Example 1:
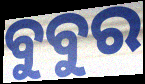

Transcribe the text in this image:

ବୁବୁର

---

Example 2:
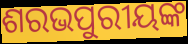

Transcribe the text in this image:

ଶରଭପୁରୀୟଙ୍କ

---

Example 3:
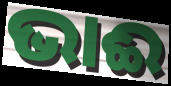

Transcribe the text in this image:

ଭାଈ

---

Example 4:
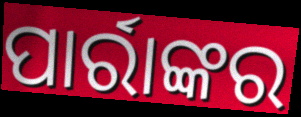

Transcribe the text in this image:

ପାର୍ରାଙ୍କର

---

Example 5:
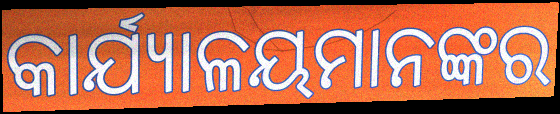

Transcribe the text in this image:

କାର୍ଯ୍ୟାଳୟମାନଙ୍କର